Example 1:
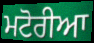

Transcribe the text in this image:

ਮਟੋਰੀਆ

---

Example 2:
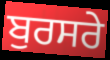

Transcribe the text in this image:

ਬੁਰਸਰੇ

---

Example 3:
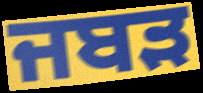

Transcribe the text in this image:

ਜਬੜ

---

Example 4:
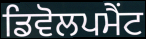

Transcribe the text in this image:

ਡਿਵੋਲਪਮੈਂਟ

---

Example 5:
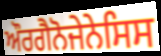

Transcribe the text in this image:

ਔਰਗੈਨੋਜੇਨੇਸਿਸ